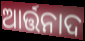
ଆର୍ତ୍ତନାଦ